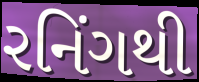
રનિંગથી